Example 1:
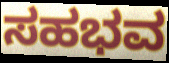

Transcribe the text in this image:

ಸಹಭವ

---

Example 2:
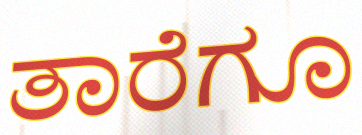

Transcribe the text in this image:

ತಾರೆಗೂ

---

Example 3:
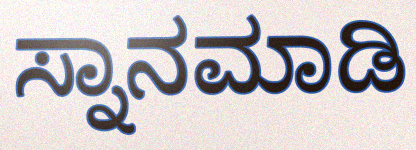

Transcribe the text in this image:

ಸ್ನಾನಮಾಡಿ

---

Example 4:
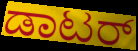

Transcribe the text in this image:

ಡಾಟರ್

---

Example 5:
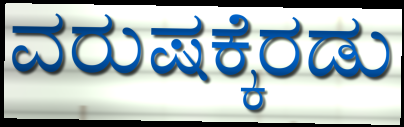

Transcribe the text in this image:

ವರುಷಕ್ಕೆರಡು